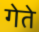
गेते